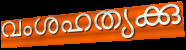
വംശഹത്യക്കു